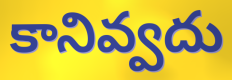
కానివ్వదు